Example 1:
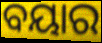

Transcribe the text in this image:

ବୟାର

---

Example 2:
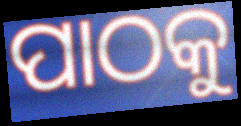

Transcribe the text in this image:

ପାଠକୁ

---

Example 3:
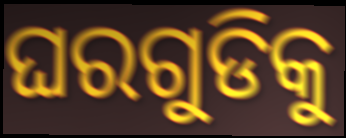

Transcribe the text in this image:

ଘରଗୁଡିକୁ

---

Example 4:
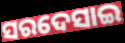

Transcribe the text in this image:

ସରଦେସାଇ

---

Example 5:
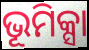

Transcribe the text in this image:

ଭୂମିକ୍ସା